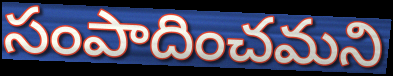
సంపాదించమని